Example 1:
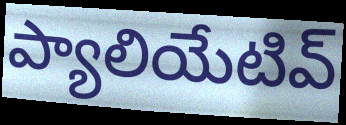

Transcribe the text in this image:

ప్యాలియేటివ్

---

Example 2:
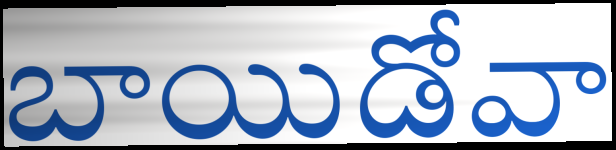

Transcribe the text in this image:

బాయిడోవా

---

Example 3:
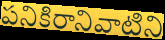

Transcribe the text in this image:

పనికిరానివాటిని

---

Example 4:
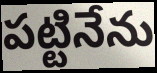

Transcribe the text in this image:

పట్టినేను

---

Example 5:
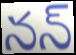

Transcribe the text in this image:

నన్